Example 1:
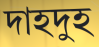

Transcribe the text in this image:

দাহদুহ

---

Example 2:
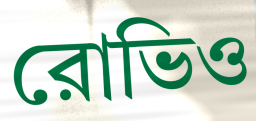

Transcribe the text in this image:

রোভিও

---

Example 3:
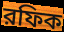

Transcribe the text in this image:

রফিক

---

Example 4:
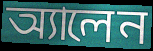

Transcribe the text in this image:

অ্যালেন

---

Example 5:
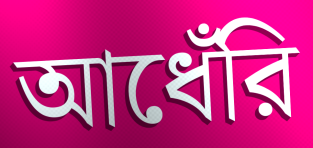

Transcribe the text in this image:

আধেঁরি